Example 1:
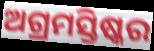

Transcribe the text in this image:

ଅଗ୍ରମସ୍ତିଷ୍କର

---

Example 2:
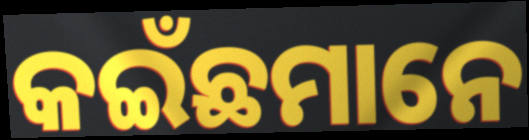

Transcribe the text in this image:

କଇଁଛମାନେ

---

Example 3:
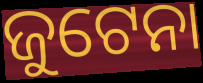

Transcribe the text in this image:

ଜୁଟେନା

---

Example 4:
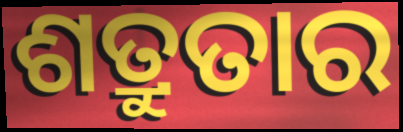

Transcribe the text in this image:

ଶତ୍ରୁତାର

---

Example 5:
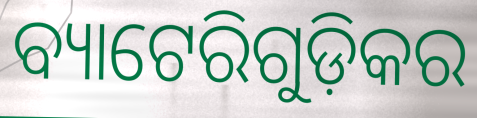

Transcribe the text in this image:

ବ୍ୟାଟେରିଗୁଡ଼ିକର